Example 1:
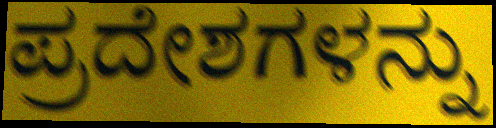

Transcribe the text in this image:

ಪ್ರದೇಶಗಳನ್ನು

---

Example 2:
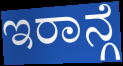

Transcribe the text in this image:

ಇರಾನ್ಗೆ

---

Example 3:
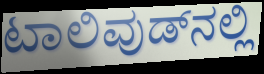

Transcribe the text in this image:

ಟಾಲಿವುಡ್‌ನಲ್ಲಿ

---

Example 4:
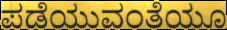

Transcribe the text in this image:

ಪಡೆಯುವಂತೆಯೂ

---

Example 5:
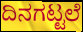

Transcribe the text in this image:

ದಿನಗಟ್ಟಲೆ